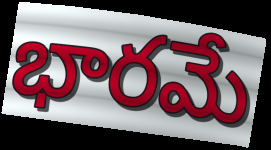
భారమే